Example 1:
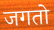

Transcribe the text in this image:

जगतो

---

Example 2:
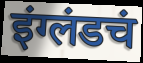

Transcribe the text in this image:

इंग्लंडचं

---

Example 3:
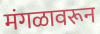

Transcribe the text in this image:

मंगळावरून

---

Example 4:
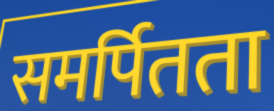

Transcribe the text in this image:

समर्पितता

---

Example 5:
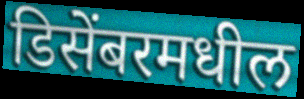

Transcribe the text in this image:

डिसेंबरमधील